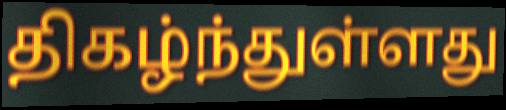
திகழ்ந்துள்ளது